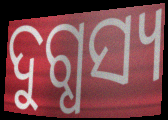
ଦୁଗ୍ଧସ୍ୟ